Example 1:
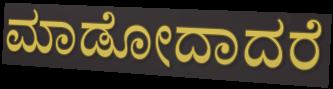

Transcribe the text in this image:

ಮಾಡೋದಾದರೆ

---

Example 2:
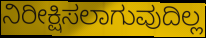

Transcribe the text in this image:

ನಿರೀಕ್ಷಿಸಲಾಗುವುದಿಲ್ಲ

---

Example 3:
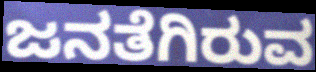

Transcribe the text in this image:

ಜನತೆಗಿರುವ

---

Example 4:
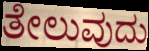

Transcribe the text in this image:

ತೇಲುವುದು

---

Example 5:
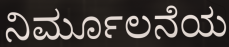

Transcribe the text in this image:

ನಿರ್ಮೂಲನೆಯ